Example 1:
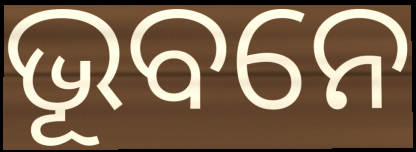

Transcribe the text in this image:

ଭୂବନେ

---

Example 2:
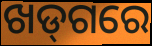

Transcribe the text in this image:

ଖଡ୍‌ଗରେ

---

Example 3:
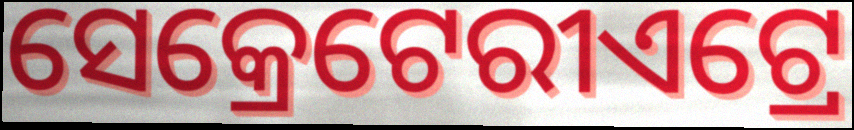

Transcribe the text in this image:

ସେକ୍ରେଟେରୀଏଟ୍ରେ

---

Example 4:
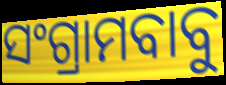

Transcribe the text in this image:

ସଂଗ୍ରାମବାବୁ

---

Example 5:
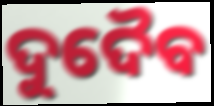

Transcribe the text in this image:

ଦୁଦୈବ